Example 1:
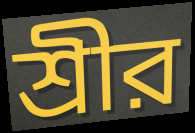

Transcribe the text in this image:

শ্রীর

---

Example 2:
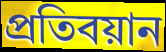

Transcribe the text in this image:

প্রতিবয়ান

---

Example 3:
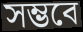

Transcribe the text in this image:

সম্ভবে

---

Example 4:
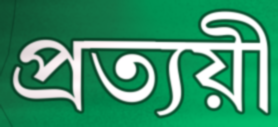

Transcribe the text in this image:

প্রত্যয়ী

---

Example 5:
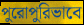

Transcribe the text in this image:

পুরোপুরিভাবে